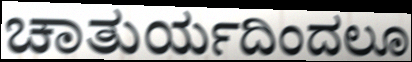
ಚಾತುರ್ಯದಿಂದಲೂ